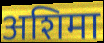
अशिमा